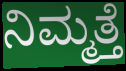
ನಿಮ್ಮತ್ತೆ